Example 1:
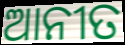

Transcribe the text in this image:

ଆନୀତ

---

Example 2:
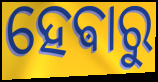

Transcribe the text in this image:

ହେଵାରୁ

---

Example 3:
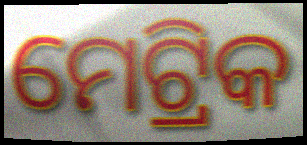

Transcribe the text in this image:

ମେଟ୍ରିକ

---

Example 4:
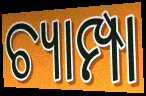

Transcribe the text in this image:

ଚ୍ୟାମ୍ପା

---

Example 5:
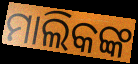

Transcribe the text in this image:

ମାଲିକଙ୍କ